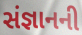
સંજ્ઞાનની